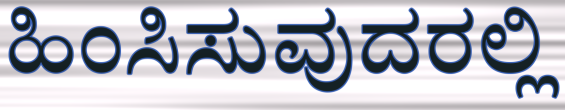
ಹಿಂಸಿಸುವುದರಲ್ಲಿ